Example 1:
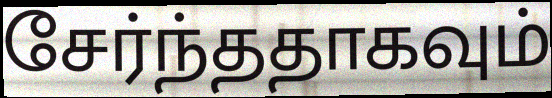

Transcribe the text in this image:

சேர்ந்ததாகவும்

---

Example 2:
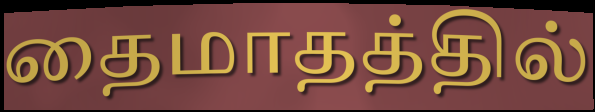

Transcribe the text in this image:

தைமாதத்தில்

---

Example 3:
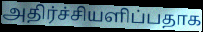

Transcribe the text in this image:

அதிர்ச்சியளிப்பதாக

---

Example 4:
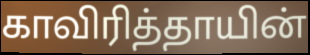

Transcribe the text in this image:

காவிரித்தாயின்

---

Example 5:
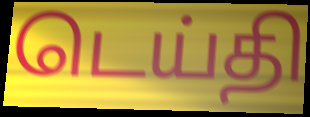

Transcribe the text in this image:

டெய்தி